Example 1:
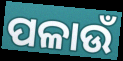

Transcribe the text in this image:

ପଳାଉଁ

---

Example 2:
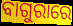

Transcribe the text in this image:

ବାଗୁରାରେ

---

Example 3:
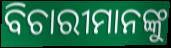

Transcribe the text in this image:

ବିଚାରୀମାନଙ୍କୁ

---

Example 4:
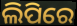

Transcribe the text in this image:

ଲିପିରେ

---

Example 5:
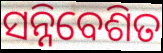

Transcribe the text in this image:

ସନ୍ନିବେଶିତ